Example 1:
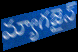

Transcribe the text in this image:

మ్యాగజైన్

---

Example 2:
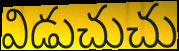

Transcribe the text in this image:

విడుచుచు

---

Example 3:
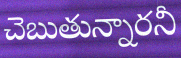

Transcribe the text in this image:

చెబుతున్నారనీ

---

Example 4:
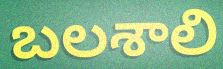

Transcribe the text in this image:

బలశాలి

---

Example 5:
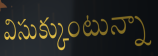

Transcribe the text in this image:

విసుక్కుంటున్నా